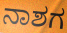
ನಾಶಗ